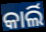
କାର୍ଲି